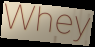
Whey